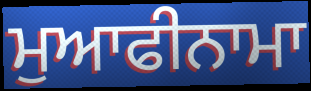
ਮੁਆਫੀਨਾਮਾ